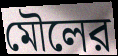
মৌলের